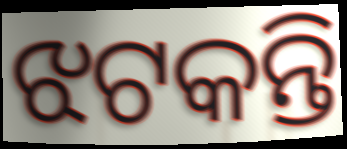
ଝଟକନ୍ତି